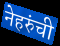
नेहरुंची